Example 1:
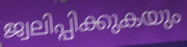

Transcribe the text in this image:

ജ്വലിപ്പിക്കുകയും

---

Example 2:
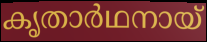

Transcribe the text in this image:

കൃതാർഥനായ്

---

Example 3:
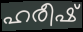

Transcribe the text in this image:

ഹരീഷ്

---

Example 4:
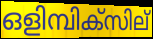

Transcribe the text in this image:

ഒളിമ്പിക്സില്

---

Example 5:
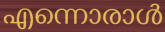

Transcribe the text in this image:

എന്നൊരാൾ